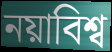
নয়াবিশ্ব